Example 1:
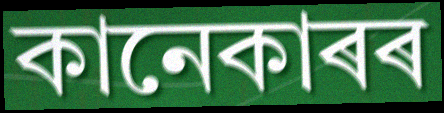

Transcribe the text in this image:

কানেকাৰৰ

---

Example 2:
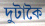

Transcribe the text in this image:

দুটাকৈ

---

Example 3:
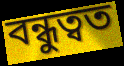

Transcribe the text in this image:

বন্ধুত্বত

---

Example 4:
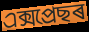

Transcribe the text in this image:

এক্সপ্ৰেছৰ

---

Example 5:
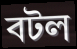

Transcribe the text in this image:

বটল